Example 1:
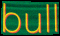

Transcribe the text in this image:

bull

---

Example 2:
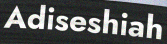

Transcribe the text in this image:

Adiseshiah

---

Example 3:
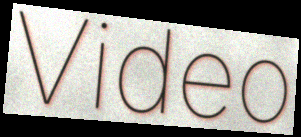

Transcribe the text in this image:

Video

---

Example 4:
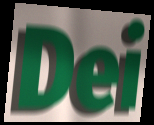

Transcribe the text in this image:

Dei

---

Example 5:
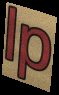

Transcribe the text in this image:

lp